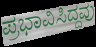
ಪ್ರಭಾವಿಸಿದ್ದವು